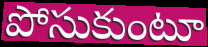
పోసుకుంటూ